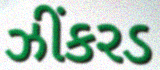
ઝીંકરડ